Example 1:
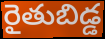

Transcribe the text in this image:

రైతుబిడ్డ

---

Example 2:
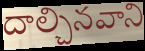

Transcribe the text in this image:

దాల్చినవాని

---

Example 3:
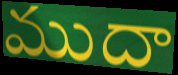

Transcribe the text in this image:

ముదా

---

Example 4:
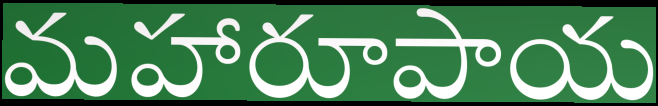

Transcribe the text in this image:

మహారూపాయ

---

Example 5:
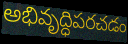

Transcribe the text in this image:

అభివృద్ధిపరచడం